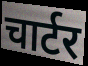
चार्टर